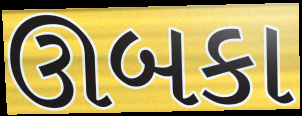
ઊબકા